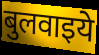
बुलवाइये